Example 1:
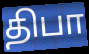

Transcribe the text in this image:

திபா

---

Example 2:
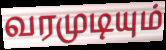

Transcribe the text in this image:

வரமுடியும்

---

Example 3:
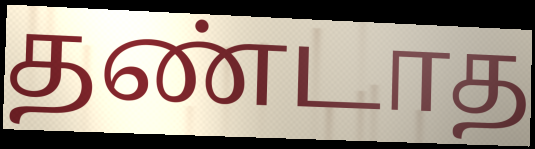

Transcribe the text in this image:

தண்டாத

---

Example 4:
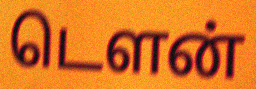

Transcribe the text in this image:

டௌன்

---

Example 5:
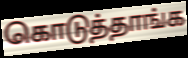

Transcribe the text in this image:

கொடுத்தாங்க